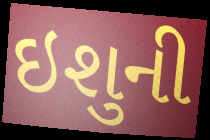
ઇશુની